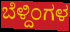
ಬೆಳ್ದಿಂಗಳ